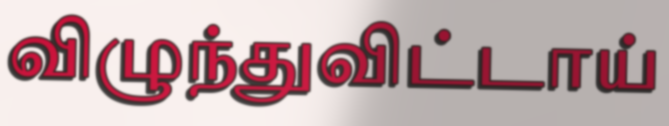
விழுந்துவிட்டாய்